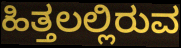
ಹಿತ್ತಲಲ್ಲಿರುವ